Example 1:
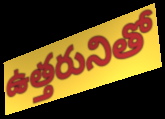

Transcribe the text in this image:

ఉత్తరునితో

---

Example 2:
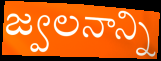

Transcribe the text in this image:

జ్వలనాన్ని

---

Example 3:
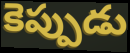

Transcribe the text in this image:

కెప్పుడు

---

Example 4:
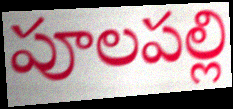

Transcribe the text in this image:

పూలపల్లి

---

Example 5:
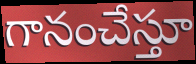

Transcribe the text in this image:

గానంచేస్తూ